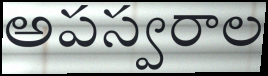
అపస్వరాల